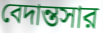
বেদান্তসার